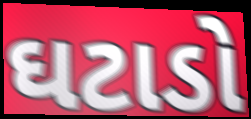
ઘટાડો